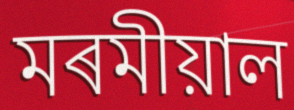
মৰমীয়াল